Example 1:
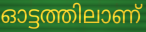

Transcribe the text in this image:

ഓട്ടത്തിലാണ്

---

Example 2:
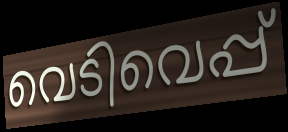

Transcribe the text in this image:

വെടിവെപ്പ്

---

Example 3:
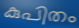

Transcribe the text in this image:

കുപിതം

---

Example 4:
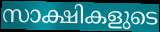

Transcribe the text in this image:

സാക്ഷികളുടെ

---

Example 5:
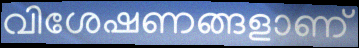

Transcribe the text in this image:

വിശേഷണങ്ങളാണ്